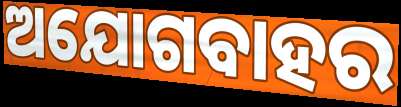
ଅଯୋଗବାହର